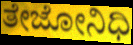
ತೇಜೋನಿಧಿ